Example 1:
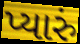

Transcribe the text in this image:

પ્યારું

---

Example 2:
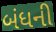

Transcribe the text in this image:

બંધની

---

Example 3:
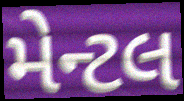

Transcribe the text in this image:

મેન્ટલ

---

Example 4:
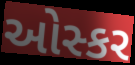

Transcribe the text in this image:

ઓસ્કર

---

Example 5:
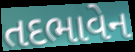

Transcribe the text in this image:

તદભાવેન